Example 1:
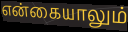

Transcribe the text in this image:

என்கையாலும்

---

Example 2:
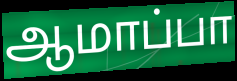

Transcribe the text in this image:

ஆமாப்பா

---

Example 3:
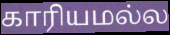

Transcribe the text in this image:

காரியமல்ல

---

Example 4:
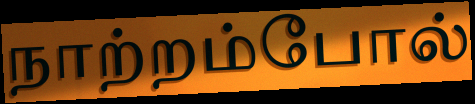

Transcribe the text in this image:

நாற்றம்போல்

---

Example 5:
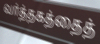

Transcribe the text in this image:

வர்த்தகத்தைத்